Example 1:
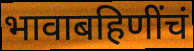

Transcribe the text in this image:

भावाबहिणींचं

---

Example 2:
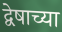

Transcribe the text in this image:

द्वेषाच्या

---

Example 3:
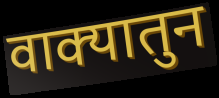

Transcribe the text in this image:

वाक्यातुन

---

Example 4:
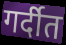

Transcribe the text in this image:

गर्दीत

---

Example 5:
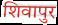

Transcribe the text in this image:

शिवापुर